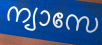
ന്യാസേ